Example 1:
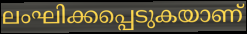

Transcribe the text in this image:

ലംഘിക്കപ്പെടുകയാണ്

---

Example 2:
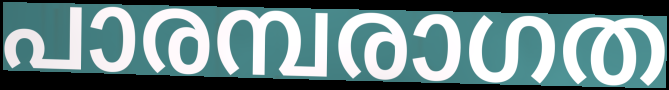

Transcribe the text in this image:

പാരമ്പരാഗത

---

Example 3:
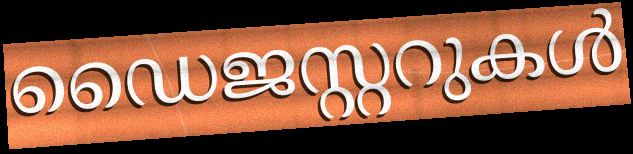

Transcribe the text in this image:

ഡൈജസ്റ്ററുകൾ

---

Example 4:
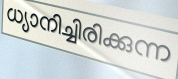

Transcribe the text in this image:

ധ്യാനിച്ചിരിക്കുന്ന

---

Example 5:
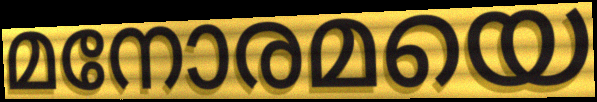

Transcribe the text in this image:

മനോരമയെ